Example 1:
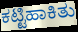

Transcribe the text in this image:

ಕಟ್ಟಿಹಾಕಿತು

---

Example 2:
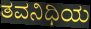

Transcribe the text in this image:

ತವನಿಧಿಯ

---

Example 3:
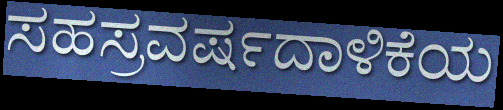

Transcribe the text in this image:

ಸಹಸ್ರವರ್ಷದಾಳಿಕೆಯ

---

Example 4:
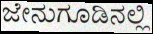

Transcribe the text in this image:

ಜೇನುಗೂಡಿನಲ್ಲಿ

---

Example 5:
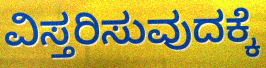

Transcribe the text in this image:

ವಿಸ್ತರಿಸುವುದಕ್ಕೆ